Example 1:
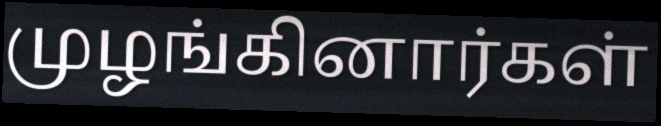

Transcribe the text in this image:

முழங்கினார்கள்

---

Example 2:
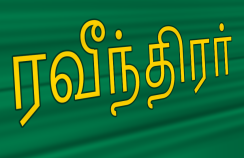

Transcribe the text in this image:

ரவீந்திரர்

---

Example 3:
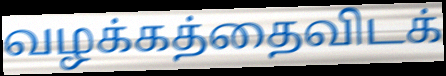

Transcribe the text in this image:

வழக்கத்தைவிடக்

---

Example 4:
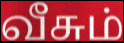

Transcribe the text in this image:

வீசும்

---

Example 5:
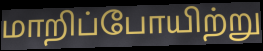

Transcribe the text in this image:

மாறிப்போயிற்று